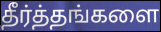
தீர்த்தங்களை